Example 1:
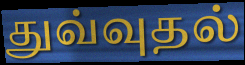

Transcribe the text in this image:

துவ்வுதல்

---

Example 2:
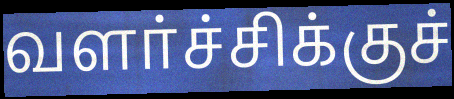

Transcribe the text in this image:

வளர்ச்சிக்குச்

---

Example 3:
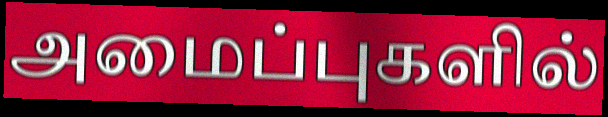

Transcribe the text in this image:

அமைப்புகளில்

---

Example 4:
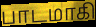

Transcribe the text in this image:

பாடமாகி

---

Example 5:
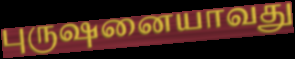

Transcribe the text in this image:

புருஷனையாவது